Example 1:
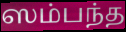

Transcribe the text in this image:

ஸம்பந்த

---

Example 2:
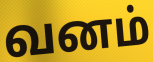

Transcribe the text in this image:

வனம்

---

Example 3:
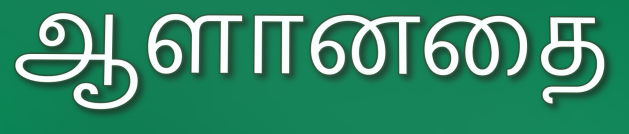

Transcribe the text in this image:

ஆளானதை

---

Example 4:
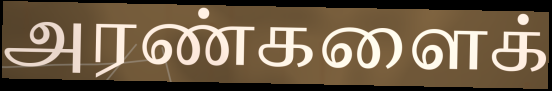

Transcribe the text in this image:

அரண்களைக்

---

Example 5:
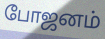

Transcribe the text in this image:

போஜனம்